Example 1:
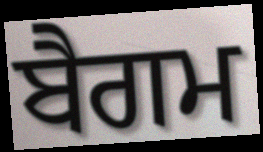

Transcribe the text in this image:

ਬੈਗਮ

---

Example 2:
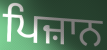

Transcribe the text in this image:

ਪਿਜ਼ਾਨ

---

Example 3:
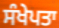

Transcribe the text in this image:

ਸੰਖੇਪਤਾ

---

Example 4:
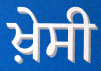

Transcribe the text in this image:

ਖ਼ੇਸੀ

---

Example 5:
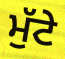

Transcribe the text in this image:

ਮੁੱਟੇ